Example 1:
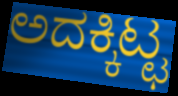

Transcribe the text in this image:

ಅದಕ್ಕಿಟ್ಟ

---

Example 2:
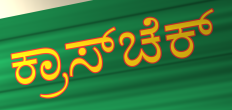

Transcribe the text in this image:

ಕ್ರಾಸ್‌ಚೆಕ್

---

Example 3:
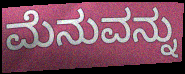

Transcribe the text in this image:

ಮೆನುವನ್ನು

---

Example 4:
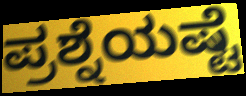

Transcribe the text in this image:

ಪ್ರಶ್ನೆಯಷ್ಟೆ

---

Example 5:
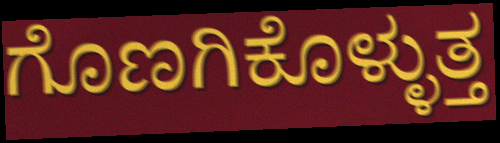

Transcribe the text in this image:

ಗೊಣಗಿಕೊಳ್ಳುತ್ತ